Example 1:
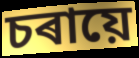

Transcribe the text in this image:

চৰায়ে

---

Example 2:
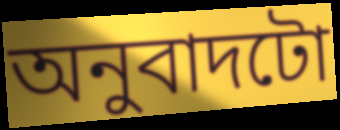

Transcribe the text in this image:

অনুবাদটো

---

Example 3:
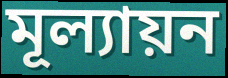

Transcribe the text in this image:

মূল্যায়ন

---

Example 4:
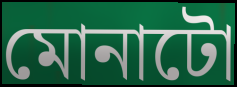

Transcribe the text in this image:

মোনাটো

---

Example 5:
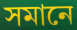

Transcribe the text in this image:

সমানে